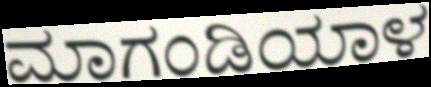
ಮಾಗಂಡಿಯಾಳ